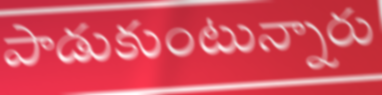
పాడుకుంటున్నారు